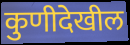
कुणीदेखील